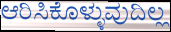
ಆರಿಸಿಕೊಳ್ಳುವುದಿಲ್ಲ